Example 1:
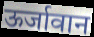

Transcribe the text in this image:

ऊर्जावान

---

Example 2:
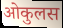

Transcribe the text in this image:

ओकुलस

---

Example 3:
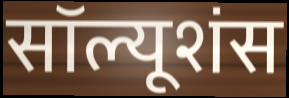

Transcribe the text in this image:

सॉल्यूशंस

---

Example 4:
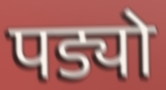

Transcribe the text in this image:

पड्यो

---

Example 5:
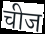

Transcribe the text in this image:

चीज